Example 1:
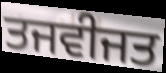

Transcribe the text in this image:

ਤਜਵੀਜਤ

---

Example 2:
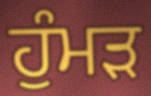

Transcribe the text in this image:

ਹੁੰਮੜ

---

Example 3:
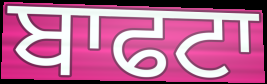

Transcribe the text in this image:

ਬਾਫਟਾ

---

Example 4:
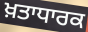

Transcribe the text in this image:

ਖ਼ਤਾਧਾਰਕ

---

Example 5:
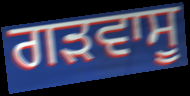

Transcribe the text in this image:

ਗੜਵਾਸੂ